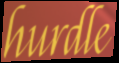
hurdle